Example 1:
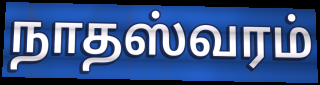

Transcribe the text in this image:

நாதஸ்வரம்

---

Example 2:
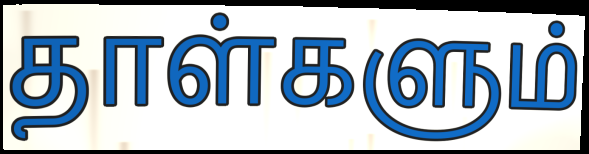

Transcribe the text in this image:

தாள்களும்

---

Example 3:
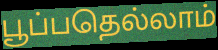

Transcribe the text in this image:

பூப்பதெல்லாம்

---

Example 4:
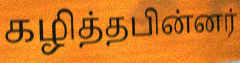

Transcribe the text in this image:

கழித்தபின்னர்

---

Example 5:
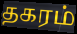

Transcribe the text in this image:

தகரம்